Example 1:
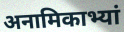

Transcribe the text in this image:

अनामिकाभ्यां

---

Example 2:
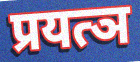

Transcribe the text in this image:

प्रयत्ञ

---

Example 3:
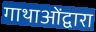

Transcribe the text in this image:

गाथाओंद्वारा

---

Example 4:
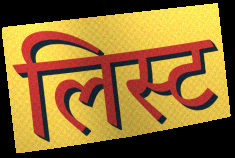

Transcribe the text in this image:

लिस्‍ट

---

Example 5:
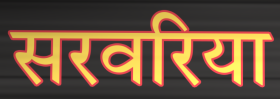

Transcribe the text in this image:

सरवरिया